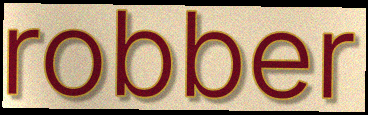
robber